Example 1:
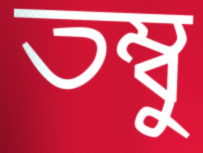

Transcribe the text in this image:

তম্বু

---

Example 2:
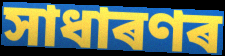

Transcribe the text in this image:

সাধাৰণৰ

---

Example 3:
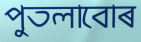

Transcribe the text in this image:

পুতলাবোৰ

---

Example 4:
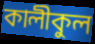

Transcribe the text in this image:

কালীকুল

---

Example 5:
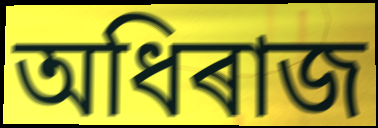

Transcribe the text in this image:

অধিৰাজ